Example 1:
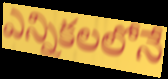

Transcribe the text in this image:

ఎన్నికలలోనే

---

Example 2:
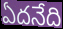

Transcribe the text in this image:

ఏదనేది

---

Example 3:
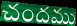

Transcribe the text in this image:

చందము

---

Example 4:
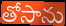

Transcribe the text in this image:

తోసాను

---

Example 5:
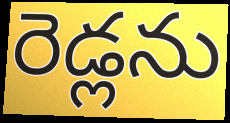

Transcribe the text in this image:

రెడ్లను